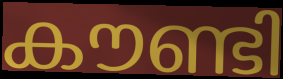
കൗണ്ടി